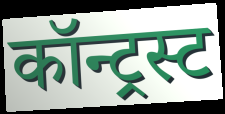
कॉन्ट्रस्ट